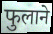
फुलाने